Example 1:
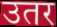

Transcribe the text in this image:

उतर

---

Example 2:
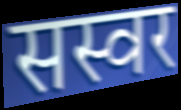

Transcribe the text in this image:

सस्वर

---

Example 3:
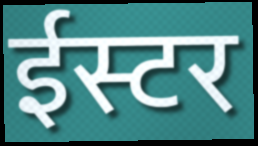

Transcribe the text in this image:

ईस्टर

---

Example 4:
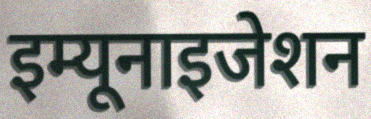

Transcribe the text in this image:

इम्यूनाइजेशन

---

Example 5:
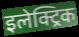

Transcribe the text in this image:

इलेक्ट्रिक